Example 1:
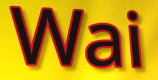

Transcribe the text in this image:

Wai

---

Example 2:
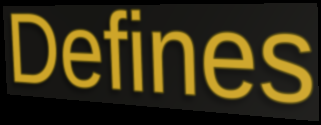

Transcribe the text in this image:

Defines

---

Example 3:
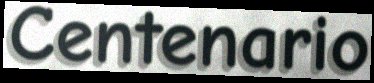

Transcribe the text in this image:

Centenario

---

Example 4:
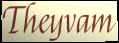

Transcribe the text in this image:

Theyvam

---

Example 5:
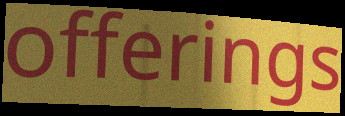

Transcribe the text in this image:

offerings